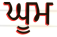
ਘੂਮ